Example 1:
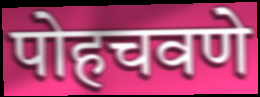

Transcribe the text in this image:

पोहचवणे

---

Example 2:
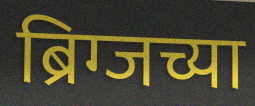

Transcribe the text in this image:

ब्रिग्जच्या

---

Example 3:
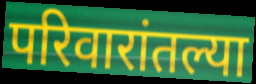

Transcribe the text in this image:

परिवारांतल्या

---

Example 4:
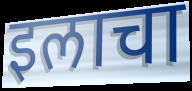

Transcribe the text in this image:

इलाचा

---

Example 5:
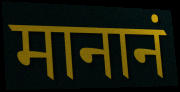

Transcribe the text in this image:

मानानं